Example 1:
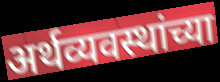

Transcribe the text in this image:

अर्थव्यवस्थांच्या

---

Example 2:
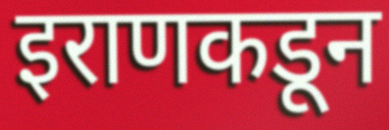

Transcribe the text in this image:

इराणकडून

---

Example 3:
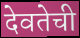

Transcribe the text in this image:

देवतेची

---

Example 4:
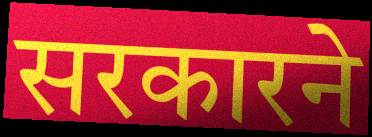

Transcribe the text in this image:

सरकारने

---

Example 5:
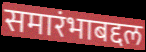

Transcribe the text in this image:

समारंभाबद्दल